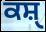
ਕਸ਼ੑ